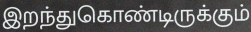
இறந்துகொண்டிருக்கும்